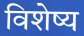
विशेष्य